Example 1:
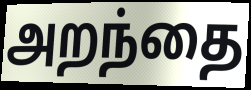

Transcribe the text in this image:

அறந்தை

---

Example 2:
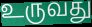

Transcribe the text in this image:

உருவது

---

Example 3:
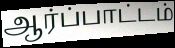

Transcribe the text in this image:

ஆர்ப்பாட்டம்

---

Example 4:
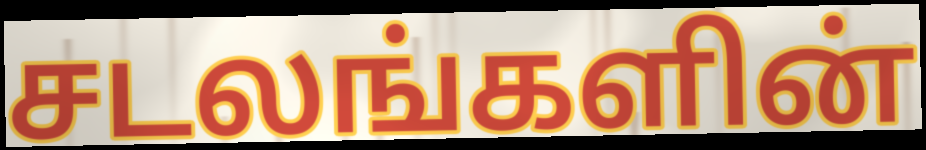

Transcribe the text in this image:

சடலங்களின்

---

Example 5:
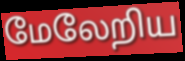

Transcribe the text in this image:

மேலேறிய